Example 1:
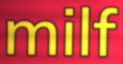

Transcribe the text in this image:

milf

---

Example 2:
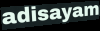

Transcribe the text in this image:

adisayam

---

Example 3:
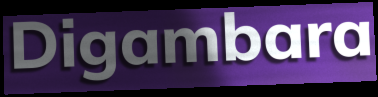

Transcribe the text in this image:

Digambara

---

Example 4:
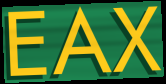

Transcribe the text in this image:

EAX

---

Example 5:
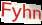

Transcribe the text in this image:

Fyhn